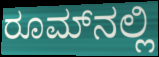
ರೂಮ್‌ನಲ್ಲಿ